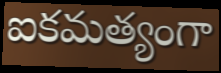
ఐకమత్యంగా